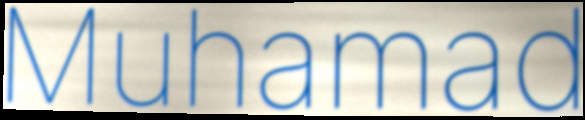
Muhamad